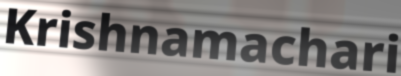
Krishnamachari